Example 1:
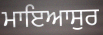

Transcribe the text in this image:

ਮਾਇਆਸੁਰ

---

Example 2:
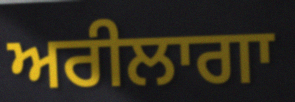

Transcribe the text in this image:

ਅਰੀਲਾਗਾ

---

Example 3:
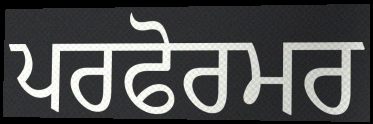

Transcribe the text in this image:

ਪਰਫੋਰਮਰ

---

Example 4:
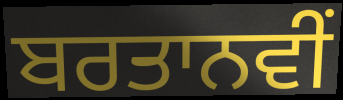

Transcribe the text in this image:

ਬਰਤਾਨਵੀਂ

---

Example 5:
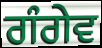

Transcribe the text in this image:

ਗੰਗੇਵ